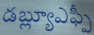
డబ్ల్యూఎఫ్పీ